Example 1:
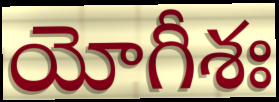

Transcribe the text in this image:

యోగీశః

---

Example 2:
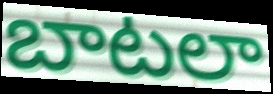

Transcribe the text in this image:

బాటలా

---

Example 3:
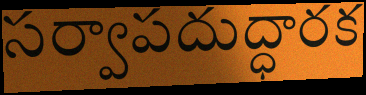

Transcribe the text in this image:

సర్వాపదుద్ధారక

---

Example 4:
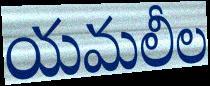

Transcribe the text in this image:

యమలీల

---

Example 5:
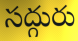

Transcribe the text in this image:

సద్గురు